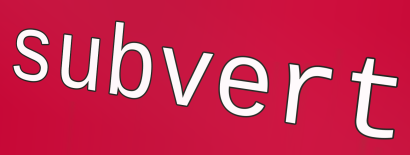
subvert